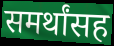
समर्थांसह